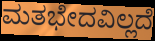
ಮತಭೇದವಿಲ್ಲದೆ